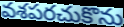
వశపరచుకొను